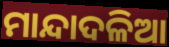
ମାନ୍ଦାଦଳିଆ